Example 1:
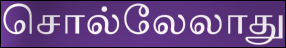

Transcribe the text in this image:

சொல்லேலாது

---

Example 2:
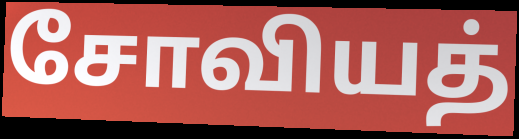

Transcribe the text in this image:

சோவியத்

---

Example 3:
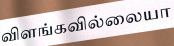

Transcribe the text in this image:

விளங்கவில்லையா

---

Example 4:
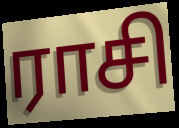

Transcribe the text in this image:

ராசி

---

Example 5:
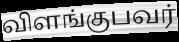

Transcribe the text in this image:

விளங்குபவர்